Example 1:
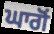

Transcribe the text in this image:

ਘਾਗੋਂ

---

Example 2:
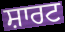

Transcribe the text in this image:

ਸ਼ਾਰਟ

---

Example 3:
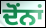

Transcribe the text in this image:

ਦੋਂਨਾਂ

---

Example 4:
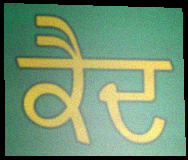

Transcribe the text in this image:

ਕੈਦ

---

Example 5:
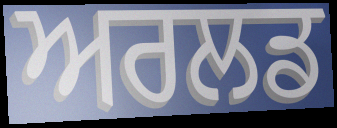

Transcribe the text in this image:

ਅਰਲਡ